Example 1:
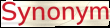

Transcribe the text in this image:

Synonym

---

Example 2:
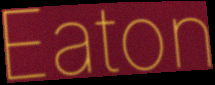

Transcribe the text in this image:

Eaton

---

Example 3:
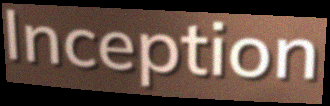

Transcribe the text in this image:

Inception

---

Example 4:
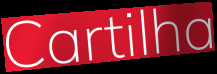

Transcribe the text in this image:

Cartilha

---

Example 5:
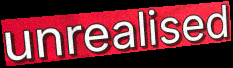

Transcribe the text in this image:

unrealised